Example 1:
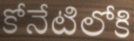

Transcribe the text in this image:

కోనేటిలోకి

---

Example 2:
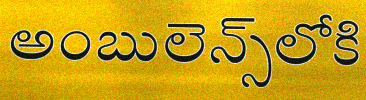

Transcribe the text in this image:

అంబులెన్స్‌లోకి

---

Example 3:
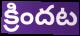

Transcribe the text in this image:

క్రిందట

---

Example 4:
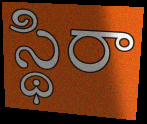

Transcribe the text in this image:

స్థిరా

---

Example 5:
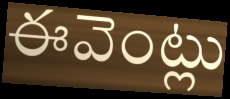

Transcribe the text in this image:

ఈవెంట్లు